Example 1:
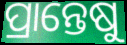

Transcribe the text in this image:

ପ୍ରାନ୍ତେଷୁ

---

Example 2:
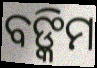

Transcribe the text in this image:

ବଙ୍କିମ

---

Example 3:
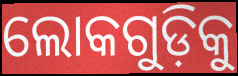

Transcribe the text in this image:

ଲୋକଗୁଡ଼ିକୁ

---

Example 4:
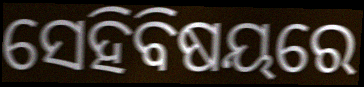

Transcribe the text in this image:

ସେହିବିଷୟରେ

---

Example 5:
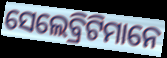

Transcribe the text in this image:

ସେଲେବ୍ରିଟିମାନେ